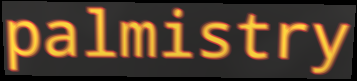
palmistry